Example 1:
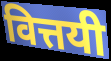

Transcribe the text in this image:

वित्तयी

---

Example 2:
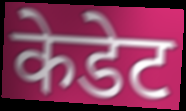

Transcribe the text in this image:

केडेट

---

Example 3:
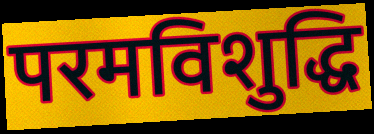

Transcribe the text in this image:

परमविशुद्धि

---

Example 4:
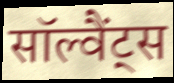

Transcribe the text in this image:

सॉल्वैंट्स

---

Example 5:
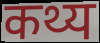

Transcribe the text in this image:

कथ्य